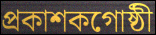
প্রকাশকগোষ্ঠী